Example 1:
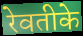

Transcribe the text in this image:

रेवतीके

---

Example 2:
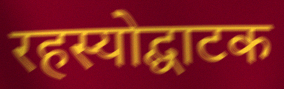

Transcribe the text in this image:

रहस्योद्घाटक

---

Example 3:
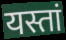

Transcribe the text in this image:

यस्तां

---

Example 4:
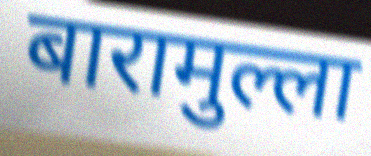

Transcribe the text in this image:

बारामुल्ला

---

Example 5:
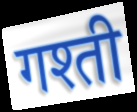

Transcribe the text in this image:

गश्‍ती